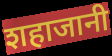
शहाजानी